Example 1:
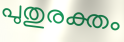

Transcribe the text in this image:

പുതുരക്തം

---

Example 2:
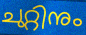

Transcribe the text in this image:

ചുറ്റിനും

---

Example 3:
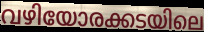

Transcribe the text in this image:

വഴിയോരക്കടയിലെ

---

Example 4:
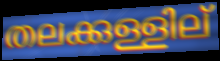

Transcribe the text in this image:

തലക്കുള്ളില്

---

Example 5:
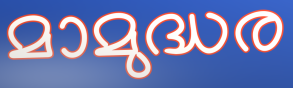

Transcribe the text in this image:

മാമുദ്ധര